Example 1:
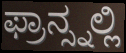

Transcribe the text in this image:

ಫ್ರಾನ್ಸ್ನಲ್ಲಿ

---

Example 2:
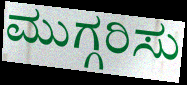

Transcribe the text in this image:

ಮುಗ್ಗರಿಸು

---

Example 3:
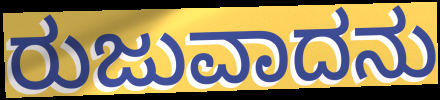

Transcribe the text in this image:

ರುಜುವಾದನು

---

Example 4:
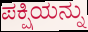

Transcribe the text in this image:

ಪಕ್ಷಿಯನ್ನು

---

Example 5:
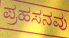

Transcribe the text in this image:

ಪ್ರಹಸನವು